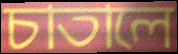
চাতালে